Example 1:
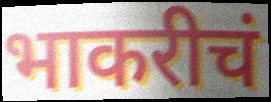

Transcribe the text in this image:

भाकरीचं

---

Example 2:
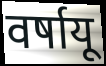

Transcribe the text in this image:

वर्षायू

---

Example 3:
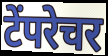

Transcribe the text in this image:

टेंपरेचर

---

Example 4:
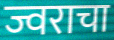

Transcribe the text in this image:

ज्वराचा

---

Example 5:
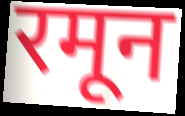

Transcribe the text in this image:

रमून